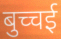
बुच्चई